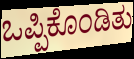
ಒಪ್ಪಿಕೊಂಡಿತು